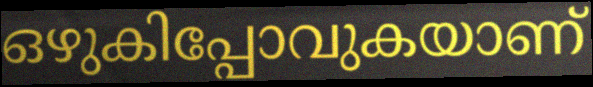
ഒഴുകിപ്പോവുകയാണ്